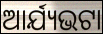
ଆର୍ଯ୍ୟଭଟା